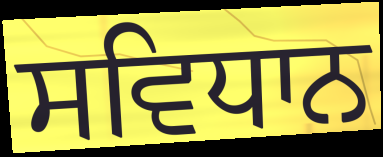
ਸਵਿਧਾਨ